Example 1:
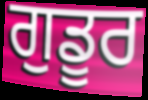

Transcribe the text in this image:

ਗੁਡੂਰ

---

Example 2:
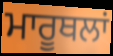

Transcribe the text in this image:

ਮਾਰੂਥਲਾਂ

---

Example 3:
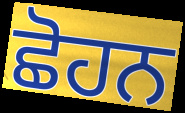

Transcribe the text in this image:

ਛੋਹਨ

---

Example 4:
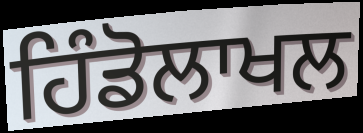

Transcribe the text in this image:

ਹਿੰਡੋਲਾਖਲ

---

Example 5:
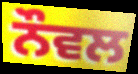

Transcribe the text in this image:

ਨੌਵਲ